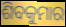
ଶିବକୁମାର